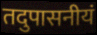
तदुपासनीयं